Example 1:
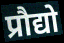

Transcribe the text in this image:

प्रौद्यो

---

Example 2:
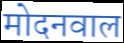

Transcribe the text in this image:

मोदनवाल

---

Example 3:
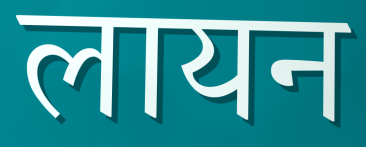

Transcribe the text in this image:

लायन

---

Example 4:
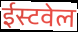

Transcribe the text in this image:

ईस्टवेल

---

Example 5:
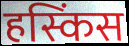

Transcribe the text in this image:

हस्किंस